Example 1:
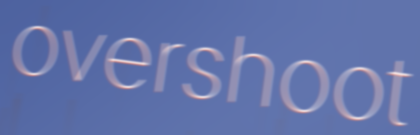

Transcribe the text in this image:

overshoot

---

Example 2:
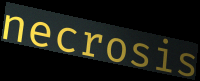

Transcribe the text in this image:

necrosis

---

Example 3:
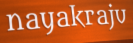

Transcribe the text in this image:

nayakraju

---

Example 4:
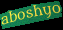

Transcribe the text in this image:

aboshyo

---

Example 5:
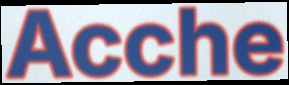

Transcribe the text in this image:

Acche